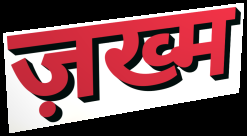
ज़ख्म